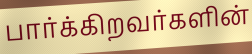
பார்க்கிறவர்களின்